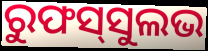
ରୁଫସ୍‌ସୁଲଭ